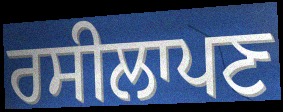
ਰਸੀਲਾਪਣ